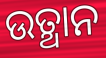
ଉତ୍ଥାନ